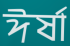
ঈৰ্ষা